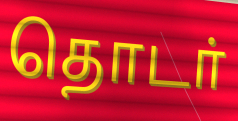
தொடர்